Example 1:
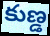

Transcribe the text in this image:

కుణ్డ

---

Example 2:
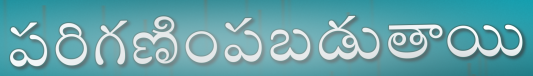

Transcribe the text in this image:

పరిగణింపబడుతాయి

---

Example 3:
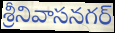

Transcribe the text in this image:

శ్రీనివాసనగర్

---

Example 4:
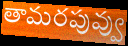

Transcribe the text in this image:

తామరపువ్వు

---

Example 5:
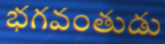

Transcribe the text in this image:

భగవంతుడు